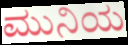
ಮುನಿಯ